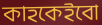
কাহকেইবো